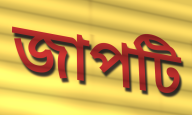
জাপটি